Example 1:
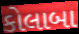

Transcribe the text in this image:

કોલાબા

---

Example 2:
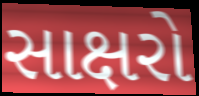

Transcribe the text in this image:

સાક્ષરો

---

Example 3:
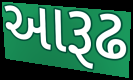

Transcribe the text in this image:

આરૂઢ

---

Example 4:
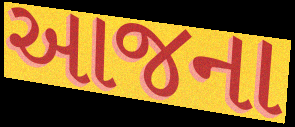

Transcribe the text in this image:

આજના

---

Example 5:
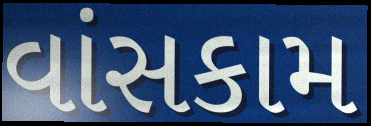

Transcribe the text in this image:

વાંસકામ